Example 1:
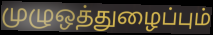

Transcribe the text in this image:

முழுஒத்துழைப்பும்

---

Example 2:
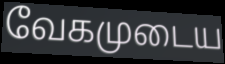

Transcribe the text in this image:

வேகமுடைய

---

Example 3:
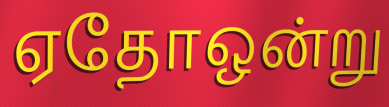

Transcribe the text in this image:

ஏதோஒன்று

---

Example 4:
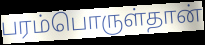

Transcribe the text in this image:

பரம்பொருள்தான்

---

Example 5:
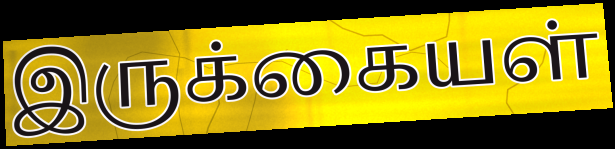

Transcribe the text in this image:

இருக்கையள்